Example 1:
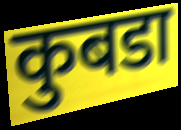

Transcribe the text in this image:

कुबडा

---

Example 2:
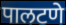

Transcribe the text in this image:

पालटणे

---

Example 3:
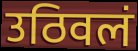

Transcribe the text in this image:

उठिवलं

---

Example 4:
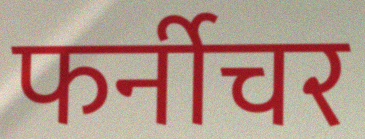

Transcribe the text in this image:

फर्नीचर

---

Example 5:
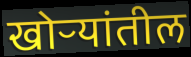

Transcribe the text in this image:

खोऱ्यांतील